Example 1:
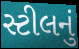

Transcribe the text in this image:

સ્ટીલનું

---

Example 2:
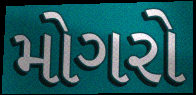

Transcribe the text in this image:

મોગરો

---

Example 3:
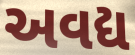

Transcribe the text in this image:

અવદ્ય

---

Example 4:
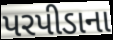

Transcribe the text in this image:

પરપીડાના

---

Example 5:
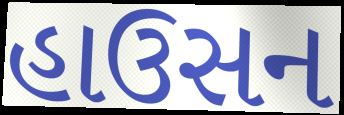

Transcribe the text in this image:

હાઉસન